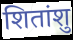
शितांशु